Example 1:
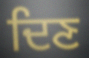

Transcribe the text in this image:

ਦਿਣ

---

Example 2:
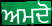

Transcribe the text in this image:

ਅਮਦੋ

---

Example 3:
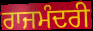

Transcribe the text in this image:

ਰਾਜਮੰਦਰੀ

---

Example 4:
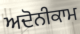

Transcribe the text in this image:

ਅਦੋਨੀਕਾਮ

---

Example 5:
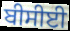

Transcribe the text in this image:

ਬੀਸੀਈ